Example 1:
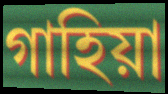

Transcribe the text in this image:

গাহিয়া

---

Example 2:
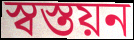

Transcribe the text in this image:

স্বস্তয়ন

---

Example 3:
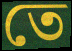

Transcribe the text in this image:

তে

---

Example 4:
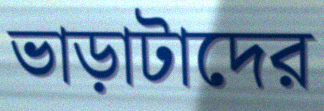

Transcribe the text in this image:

ভাড়াটাদের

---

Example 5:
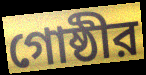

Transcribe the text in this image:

গোষ্ঠীর